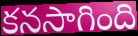
కనసాగింది